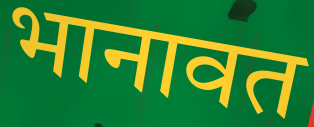
भानावत